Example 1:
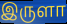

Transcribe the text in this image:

இருளா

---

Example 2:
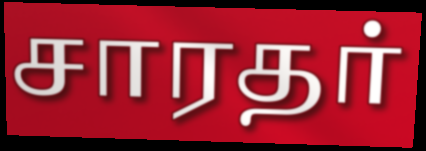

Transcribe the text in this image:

சாரதர்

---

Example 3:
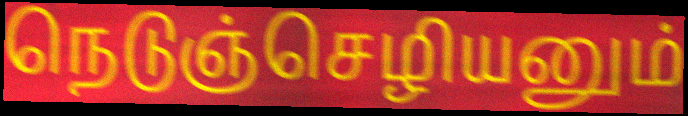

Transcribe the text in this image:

நெடுஞ்செழியனும்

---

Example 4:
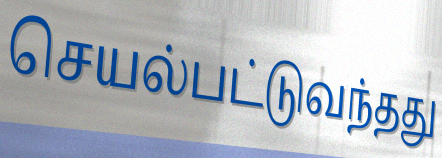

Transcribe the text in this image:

செயல்பட்டுவந்தது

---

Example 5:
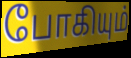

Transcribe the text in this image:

போகியும்